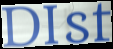
DIst